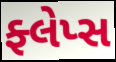
ફ્લેપ્સ